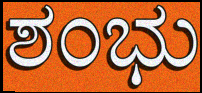
ಶಂಭು